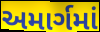
અમાર્ગમાં